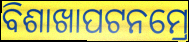
ବିଶାଖାପଟନମ୍ରେ